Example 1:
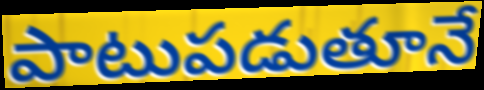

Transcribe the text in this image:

పాటుపడుతూనే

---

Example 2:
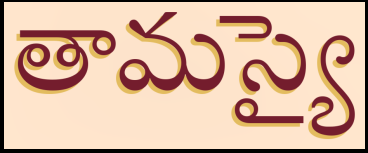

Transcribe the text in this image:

తామస్యై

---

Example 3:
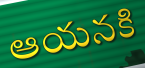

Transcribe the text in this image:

ఆయనకి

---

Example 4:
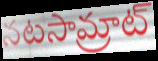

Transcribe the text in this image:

నటసామ్రాట్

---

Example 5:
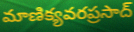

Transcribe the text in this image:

మాణిక్యవరప్రసాద్